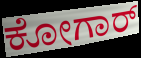
ಕೋಗಾರ್